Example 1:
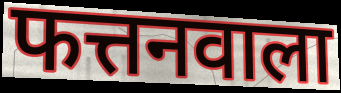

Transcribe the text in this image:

फत्तनवाला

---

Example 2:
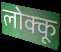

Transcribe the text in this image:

लोक्कू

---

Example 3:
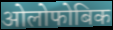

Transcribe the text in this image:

ओलोफोबिक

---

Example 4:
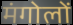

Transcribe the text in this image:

मंगोलों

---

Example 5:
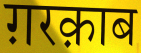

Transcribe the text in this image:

ग़रक़ाब